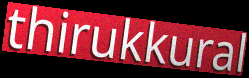
thirukkural